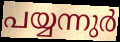
പയ്യന്നുർ